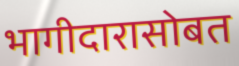
भागीदारासोबत